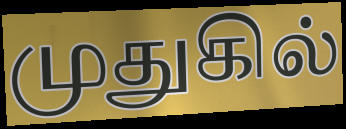
முதுகில்